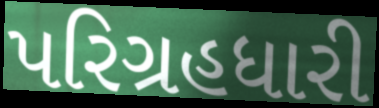
પરિગ્રહધારી